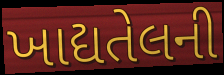
ખાદ્યતેલની